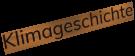
Klimageschichte